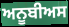
ਅਨੂਬੀਅਸ